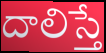
దాలిస్తే